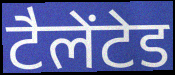
टैलेंटेड